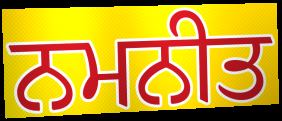
ਨਮਨੀਤ